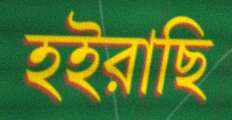
হইরাছি